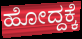
ಹೋದ್ದಕ್ಕೆ